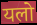
यलो